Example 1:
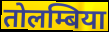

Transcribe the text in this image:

तोलम्बिया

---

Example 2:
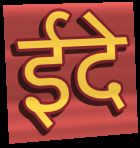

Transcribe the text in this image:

ईदे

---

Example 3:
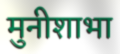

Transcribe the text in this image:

मुनीशाभा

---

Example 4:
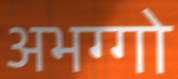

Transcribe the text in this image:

अभग्गो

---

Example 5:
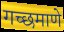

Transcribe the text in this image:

गच्छमाणे